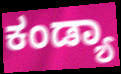
ಕಂಡ್ಯಾ